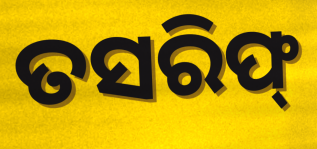
ତସରିଫ୍